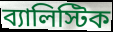
ব্যালিস্টিক